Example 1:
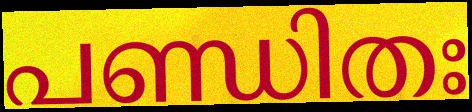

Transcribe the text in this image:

പണ്ഡിതഃ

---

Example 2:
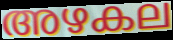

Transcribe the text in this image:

അഴകല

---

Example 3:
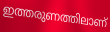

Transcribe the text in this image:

ഇത്തരുണത്തിലാണ്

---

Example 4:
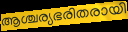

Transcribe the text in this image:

ആശ്ചര്യഭരിതരായി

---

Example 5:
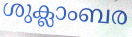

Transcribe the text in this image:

ശുക്ലാംബര